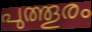
പുത്തൂരം